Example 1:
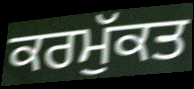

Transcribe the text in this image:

ਕਰਮੁੱਕਤ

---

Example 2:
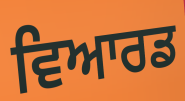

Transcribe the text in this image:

ਵਿਆਰਡ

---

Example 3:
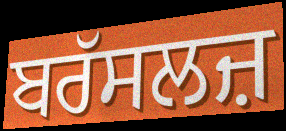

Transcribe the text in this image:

ਬਰੱਸਲਜ਼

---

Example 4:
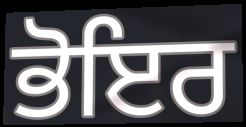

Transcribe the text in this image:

ਭੋਇਰ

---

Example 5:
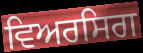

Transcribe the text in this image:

ਵਿਅਰਸਿਗ